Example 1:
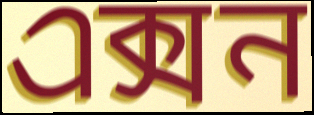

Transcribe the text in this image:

এক্সন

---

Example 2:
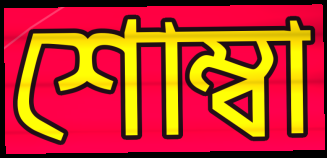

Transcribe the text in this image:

শোম্বা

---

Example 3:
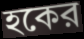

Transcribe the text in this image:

হকের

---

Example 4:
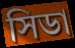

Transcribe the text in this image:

সিডা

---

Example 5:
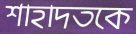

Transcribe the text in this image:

শাহাদতকে